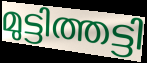
മുട്ടിത്തട്ടി